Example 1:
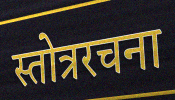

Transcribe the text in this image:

स्तोत्ररचना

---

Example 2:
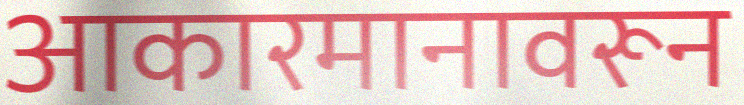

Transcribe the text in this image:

आकारमानावरून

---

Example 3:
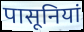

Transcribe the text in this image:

पासूनियां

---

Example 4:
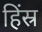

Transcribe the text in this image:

हिंस्र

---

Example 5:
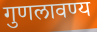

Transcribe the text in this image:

गुणलावण्य